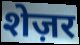
शेज़र